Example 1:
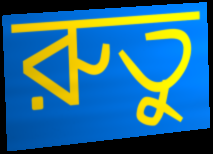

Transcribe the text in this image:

রুতু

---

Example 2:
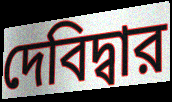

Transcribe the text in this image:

দেবিদ্বার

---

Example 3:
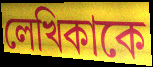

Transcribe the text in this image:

লেখিকাকে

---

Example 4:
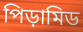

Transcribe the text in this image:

পিড়ামিড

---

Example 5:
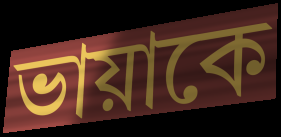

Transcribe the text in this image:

ভায়াকে